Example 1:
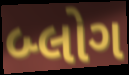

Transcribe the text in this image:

બ્લોગ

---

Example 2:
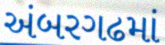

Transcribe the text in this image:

અંબરગઢમાં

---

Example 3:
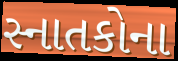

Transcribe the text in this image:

સ્નાતકોના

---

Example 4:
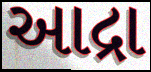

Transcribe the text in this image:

આદ્રા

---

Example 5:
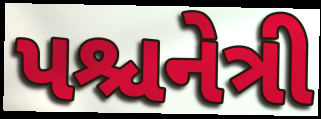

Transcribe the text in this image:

પશ્ચનેત્રી